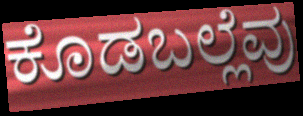
ಕೊಡಬಲ್ಲೆವು